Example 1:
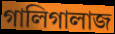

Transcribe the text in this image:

গালিগালাজ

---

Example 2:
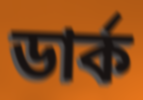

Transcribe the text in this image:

ডার্ক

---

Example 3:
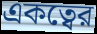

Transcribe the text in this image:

একত্বের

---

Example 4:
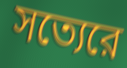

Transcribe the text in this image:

সত্যেরে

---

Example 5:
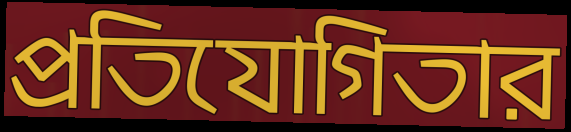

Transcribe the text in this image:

প্রতিযোগিতার